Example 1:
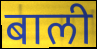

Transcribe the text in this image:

बाली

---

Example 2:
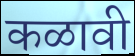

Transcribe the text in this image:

कळावी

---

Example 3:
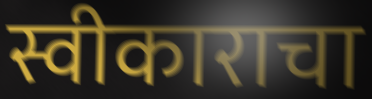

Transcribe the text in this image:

स्वीकाराचा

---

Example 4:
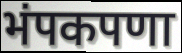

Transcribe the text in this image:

भंपकपणा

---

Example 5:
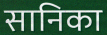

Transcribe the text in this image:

सानिका